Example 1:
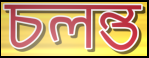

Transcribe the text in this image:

চলন্ত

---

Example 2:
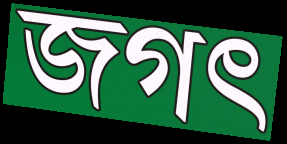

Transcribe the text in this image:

জগৎ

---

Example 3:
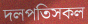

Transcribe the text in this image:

দলপতিসকল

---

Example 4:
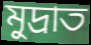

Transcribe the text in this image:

মুদ্ৰাত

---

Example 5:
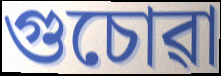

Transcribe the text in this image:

গুচোৱা